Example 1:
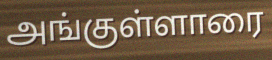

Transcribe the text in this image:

அங்குள்ளாரை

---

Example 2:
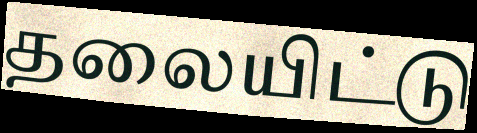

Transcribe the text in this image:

தலையிட்டு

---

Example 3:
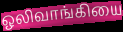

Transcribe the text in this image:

ஒலிவாங்கியை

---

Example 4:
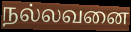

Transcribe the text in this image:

நல்லவனை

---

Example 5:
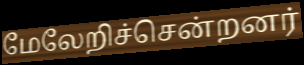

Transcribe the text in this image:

மேலேறிச்சென்றனர்